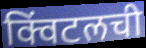
क्विंटलची